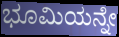
ಭೂಮಿಯನ್ನೇ